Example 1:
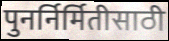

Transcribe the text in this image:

पुनर्निर्मितीसाठी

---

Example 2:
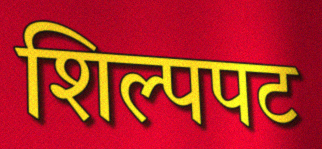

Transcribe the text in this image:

शिल्पपट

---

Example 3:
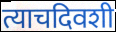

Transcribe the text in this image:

त्याचदिवशी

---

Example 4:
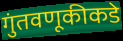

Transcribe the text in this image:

गुंतवणूकीकडे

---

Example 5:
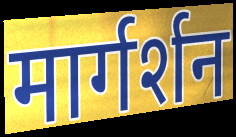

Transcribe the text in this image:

मार्गर्शन